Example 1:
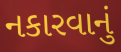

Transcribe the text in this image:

નકારવાનું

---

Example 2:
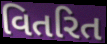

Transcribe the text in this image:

વિતરિત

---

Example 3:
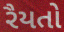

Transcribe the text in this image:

રૈયતો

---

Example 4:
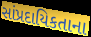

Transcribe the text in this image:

સાંપ્રદાયિકતાના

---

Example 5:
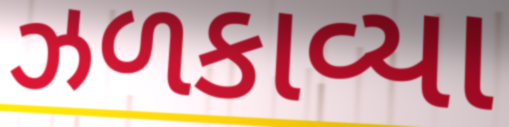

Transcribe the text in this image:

ઝળકાવ્યા